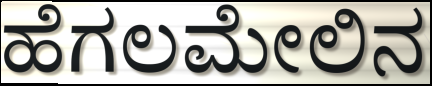
ಹೆಗಲಮೇಲಿನ